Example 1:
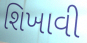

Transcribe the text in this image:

શિખાવી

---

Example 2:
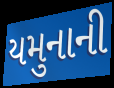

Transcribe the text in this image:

યમુનાની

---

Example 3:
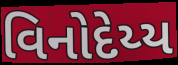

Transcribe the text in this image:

વિનોદેય્ય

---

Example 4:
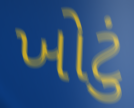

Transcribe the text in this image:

ખોટું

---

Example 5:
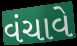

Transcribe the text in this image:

વંચાવે